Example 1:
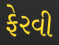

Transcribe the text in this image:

ફેરવી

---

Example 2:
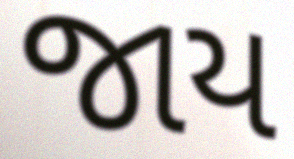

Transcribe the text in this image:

જાય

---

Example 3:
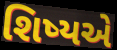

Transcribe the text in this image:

શિષ્યએ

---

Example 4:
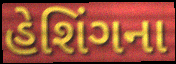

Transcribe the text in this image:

હેશિંગના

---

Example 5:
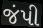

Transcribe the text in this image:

જંપી